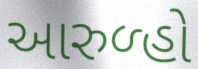
આરુળ્હો